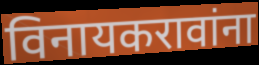
विनायकरावांना